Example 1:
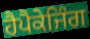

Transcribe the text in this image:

ਹੈਪੈਕੇਜਿੰਗ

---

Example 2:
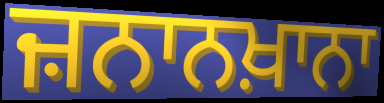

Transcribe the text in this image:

ਜ਼ਨਾਨਖ਼ਾਨਾ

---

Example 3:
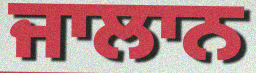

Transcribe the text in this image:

ਜਾਲਾਨ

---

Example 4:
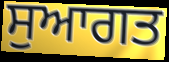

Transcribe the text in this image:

ਸੁਆਗਤ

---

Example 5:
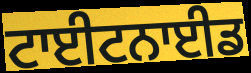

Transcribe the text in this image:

ਟਾਈਟਨਾਈਡ